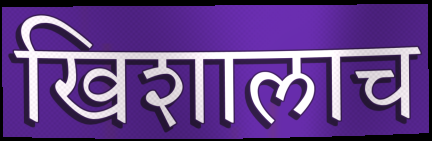
खिशालाच